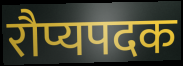
रौप्यपदक